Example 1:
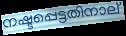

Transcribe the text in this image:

നഷ്ടപ്പെട്ടതിനാല്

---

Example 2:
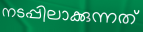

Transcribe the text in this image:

നടപ്പിലാക്കുന്നത്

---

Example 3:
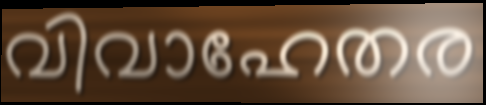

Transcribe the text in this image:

വിവാഹേതര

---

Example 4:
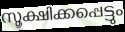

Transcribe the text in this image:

സൂക്ഷിക്കപ്പെട്ടും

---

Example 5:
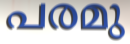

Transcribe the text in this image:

പരമു